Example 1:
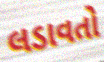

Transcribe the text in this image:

લડાવતો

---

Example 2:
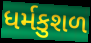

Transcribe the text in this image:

ધર્મકુશળ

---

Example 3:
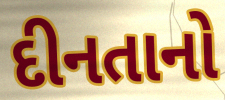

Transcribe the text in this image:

દીનતાનો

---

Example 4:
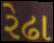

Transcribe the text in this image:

રેઢા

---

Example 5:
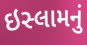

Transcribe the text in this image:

ઇસ્લામનું